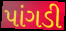
પાંગડી